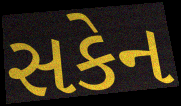
સકેન